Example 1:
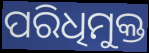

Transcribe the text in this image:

ପରିଧିମୁକ୍ତ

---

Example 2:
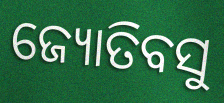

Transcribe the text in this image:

ଜ୍ୟୋତିବସୁ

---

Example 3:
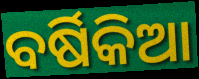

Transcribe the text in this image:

ବର୍ଷିକିଆ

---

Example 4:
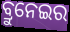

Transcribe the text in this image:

ବ୍ରୁନେଇର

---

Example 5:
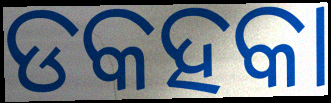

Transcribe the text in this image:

ଡକହକା